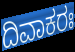
ದಿವಾಕರಃ